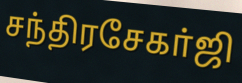
சந்திரசேகர்ஜி